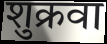
शुक्रवा